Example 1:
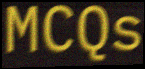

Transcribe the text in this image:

MCQs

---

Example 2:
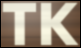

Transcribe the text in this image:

TK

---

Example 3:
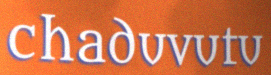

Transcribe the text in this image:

chaduvutu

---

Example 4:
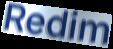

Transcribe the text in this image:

Redim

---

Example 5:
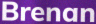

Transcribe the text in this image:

Brenan